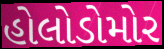
હોલોડોમોર